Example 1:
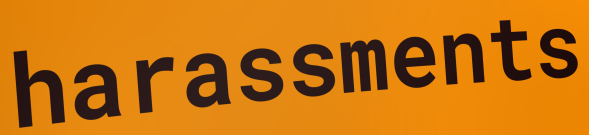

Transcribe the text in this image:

harassments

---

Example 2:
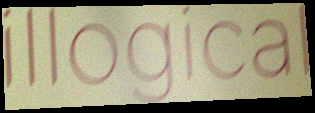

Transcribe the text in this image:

illogical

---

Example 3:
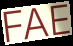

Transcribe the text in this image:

FAE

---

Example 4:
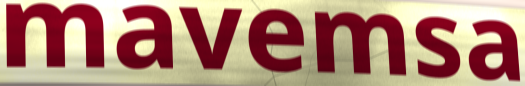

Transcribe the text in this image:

mavemsa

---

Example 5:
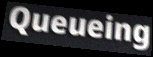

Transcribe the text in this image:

Queueing